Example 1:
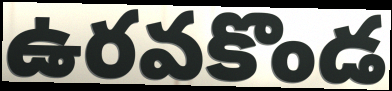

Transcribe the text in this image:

ఉరవకొండ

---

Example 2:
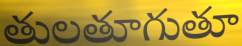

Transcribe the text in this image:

తులతూగుతూ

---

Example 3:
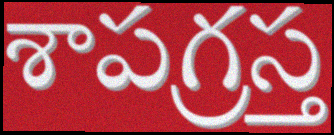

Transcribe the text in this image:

శాపగ్రస్త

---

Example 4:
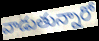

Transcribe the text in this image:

వాడుతున్నారో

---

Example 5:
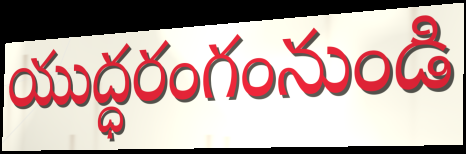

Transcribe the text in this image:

యుద్ధరంగంనుండి